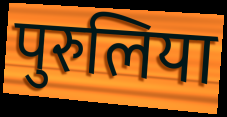
पुरुलिया